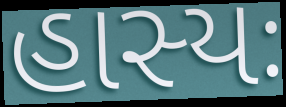
હાસ્યઃ